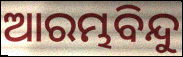
ଆରମ୍ଭବିନ୍ଦୁ